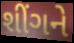
શીંગને